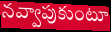
నవ్వాపుకుంటూ